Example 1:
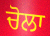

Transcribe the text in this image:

ਚੋਲਾ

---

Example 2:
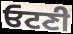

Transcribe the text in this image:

ਓਟਣੀ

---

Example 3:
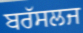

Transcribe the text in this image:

ਬਰੱਸਲਜ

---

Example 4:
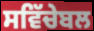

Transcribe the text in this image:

ਸਵਿੱਚੇਬਲ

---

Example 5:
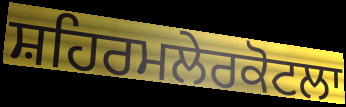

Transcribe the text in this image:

ਸ਼ਹਿਰਮਲੇਰਕੋਟਲਾ